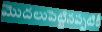
మొదలుపెట్టినప్పటికీ